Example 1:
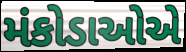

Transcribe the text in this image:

મંકોડાઓએ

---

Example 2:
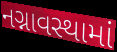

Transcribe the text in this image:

નગ્નાવસ્થામાં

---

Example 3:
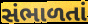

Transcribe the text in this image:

સંભાળતાં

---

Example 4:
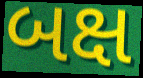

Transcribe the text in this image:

બક્ષ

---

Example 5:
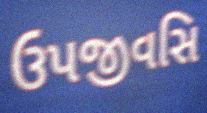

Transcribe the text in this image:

ઉપજીવસિ